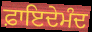
ਫ਼ਾਇਦੇਮੰਦ